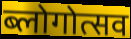
ब्लोगोत्सव